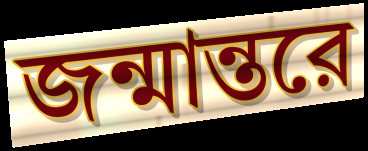
জন্মান্তরে